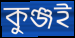
কুঞ্জই